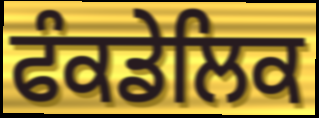
ਫੰਕਡੇਲਿਕ